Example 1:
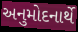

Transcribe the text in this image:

અનુમોદનાર્થે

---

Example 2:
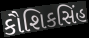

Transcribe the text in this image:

કૌશિકસિંહ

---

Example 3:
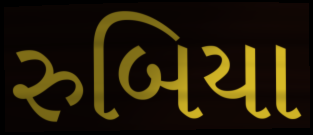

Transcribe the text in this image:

રુબિયા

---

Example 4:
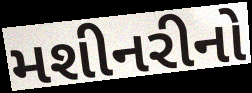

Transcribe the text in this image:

મશીનરીનો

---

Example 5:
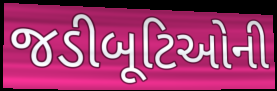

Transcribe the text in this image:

જડીબૂટિઓની